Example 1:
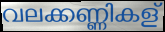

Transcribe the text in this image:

വലക്കണ്ണികള്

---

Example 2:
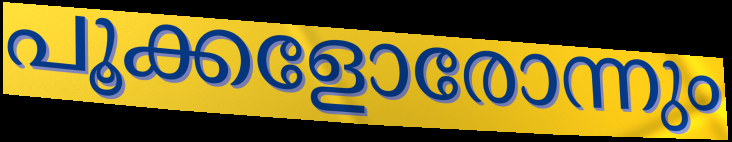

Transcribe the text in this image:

പൂക്കളോരോന്നും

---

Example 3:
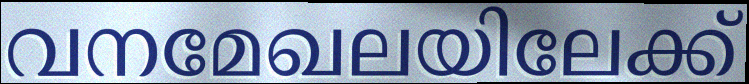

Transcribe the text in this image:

വനമേഖലയിലേക്ക്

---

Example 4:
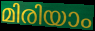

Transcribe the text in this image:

മിരിയാം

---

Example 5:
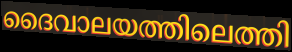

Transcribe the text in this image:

ദൈവാലയത്തിലെത്തി